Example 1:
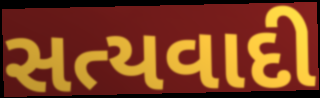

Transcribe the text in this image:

સત્યવાદી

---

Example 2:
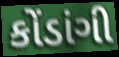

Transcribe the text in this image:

કોંડાંગી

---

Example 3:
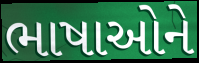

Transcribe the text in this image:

ભાષાઓને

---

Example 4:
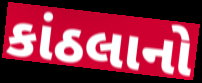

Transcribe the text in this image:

કાંઠલાનો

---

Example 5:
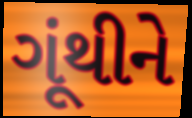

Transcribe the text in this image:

ગૂંથીને